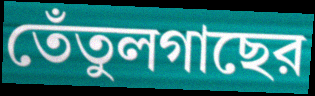
তেঁতুলগাছের